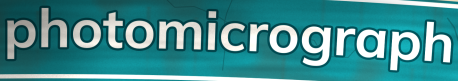
photomicrograph